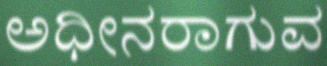
ಅಧೀನರಾಗುವ